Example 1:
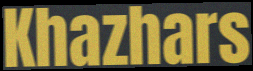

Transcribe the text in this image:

Khazhars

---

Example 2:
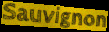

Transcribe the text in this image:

Sauvignon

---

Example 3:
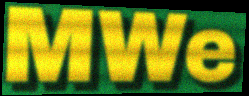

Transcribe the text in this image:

MWe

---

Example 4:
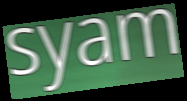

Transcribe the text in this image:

syam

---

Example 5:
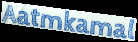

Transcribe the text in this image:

Aatmkamal